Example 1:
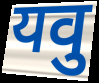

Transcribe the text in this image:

यवु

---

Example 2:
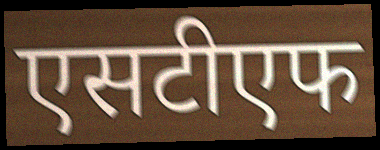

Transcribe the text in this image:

एसटीएफ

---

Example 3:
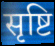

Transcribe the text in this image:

सृष्टि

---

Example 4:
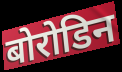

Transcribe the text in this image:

बोरोडिन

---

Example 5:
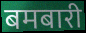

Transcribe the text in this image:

बमबारी